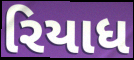
રિયાધ